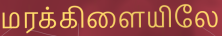
மரக்கிளையிலே